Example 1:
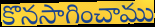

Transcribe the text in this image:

కొనసాగించాము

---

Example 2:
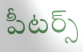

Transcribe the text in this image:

పీటర్స్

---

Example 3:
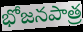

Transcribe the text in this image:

భోజనపాత్ర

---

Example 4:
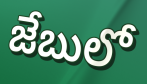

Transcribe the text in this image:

జేబులో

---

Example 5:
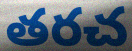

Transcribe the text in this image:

తరచ